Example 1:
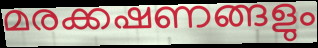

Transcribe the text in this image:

മരക്കഷണങ്ങളും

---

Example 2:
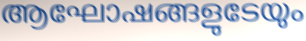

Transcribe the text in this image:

ആഘോഷങ്ങളുടേയും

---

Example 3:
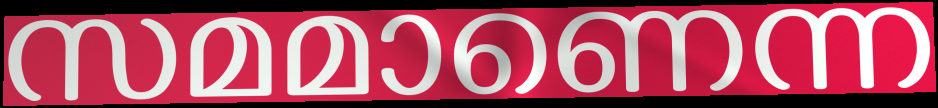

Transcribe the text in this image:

സമമാണെന്ന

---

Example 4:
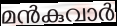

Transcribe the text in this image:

മൻകുവാർ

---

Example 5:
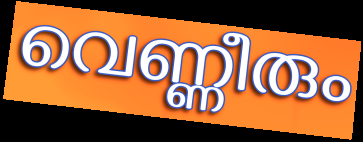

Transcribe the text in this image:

വെണ്ണീരും